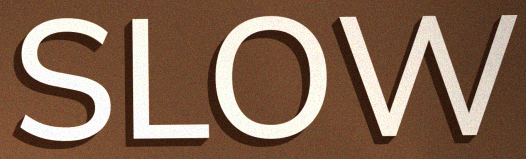
SLOW